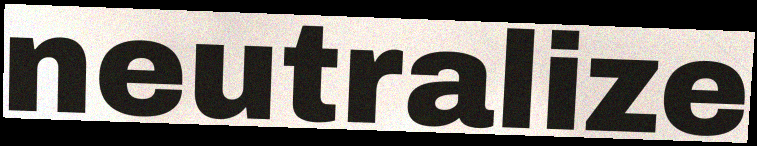
neutralize